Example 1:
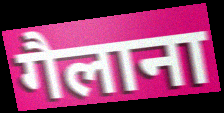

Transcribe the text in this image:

गैलाना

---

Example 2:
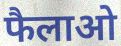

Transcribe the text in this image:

फैलाओ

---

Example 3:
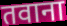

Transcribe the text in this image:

तवाना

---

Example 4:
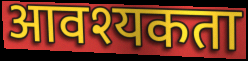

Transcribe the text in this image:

आवश्यकता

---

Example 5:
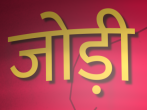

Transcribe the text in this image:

जोड़ी